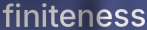
finiteness